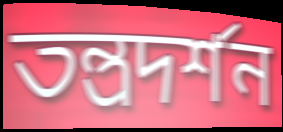
তন্ত্রদর্শন